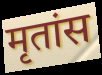
मृतांस